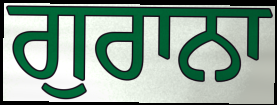
ਗੁਰਾਨਾ